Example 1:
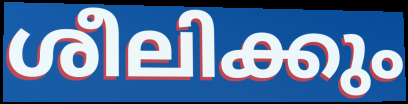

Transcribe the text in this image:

ശീലിക്കും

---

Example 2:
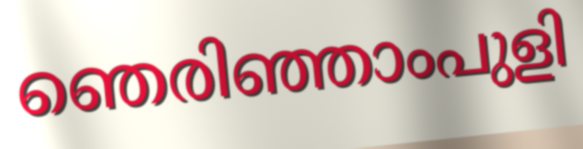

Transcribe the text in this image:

ഞെരിഞ്ഞാംപുളി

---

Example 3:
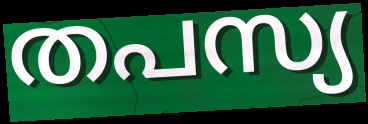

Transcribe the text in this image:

തപസ്യ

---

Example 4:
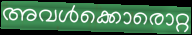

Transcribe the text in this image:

അവൾക്കൊരൊറ്റ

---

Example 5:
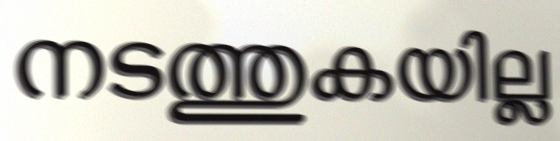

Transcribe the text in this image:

നടത്തുകയില്ല